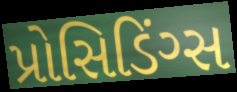
પ્રોસિડિંગ્સ